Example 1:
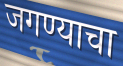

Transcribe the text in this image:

जगण्याचा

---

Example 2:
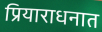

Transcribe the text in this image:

प्रियाराधनात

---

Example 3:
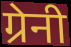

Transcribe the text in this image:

ग्रेनी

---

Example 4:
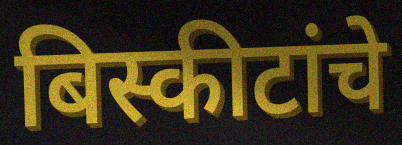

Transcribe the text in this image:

बिस्कीटांचे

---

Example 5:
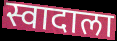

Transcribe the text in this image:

स्वादाला